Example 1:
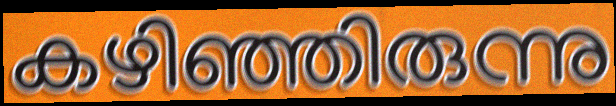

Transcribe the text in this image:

കഴിഞ്ഞിരുന്നു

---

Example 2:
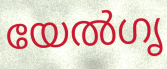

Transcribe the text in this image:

യേൽഗൃ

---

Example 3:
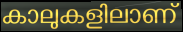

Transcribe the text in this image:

കാലുകളിലാണ്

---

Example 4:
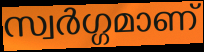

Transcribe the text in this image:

സ്വർഗ്ഗമാണ്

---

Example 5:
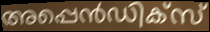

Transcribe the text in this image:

അപ്പെൻഡിക്സ്